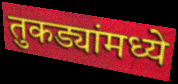
तुकड्यांमध्ये